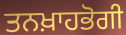
ਤਨਖ਼ਾਹਭੋਗੀ